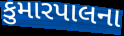
કુમારપાલના